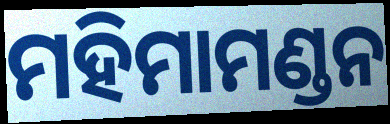
ମହିମାମଣ୍ଡନ